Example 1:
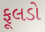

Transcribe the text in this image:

ફૂલડો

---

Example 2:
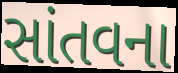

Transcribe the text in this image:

સાંતવના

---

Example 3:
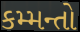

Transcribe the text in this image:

કમ્મન્તો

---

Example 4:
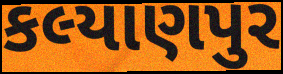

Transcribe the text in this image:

કલ્યાણપુર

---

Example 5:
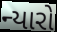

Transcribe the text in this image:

ન્યારો